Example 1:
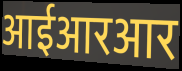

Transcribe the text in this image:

आईआरआर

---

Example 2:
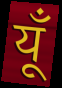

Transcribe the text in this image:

यूँ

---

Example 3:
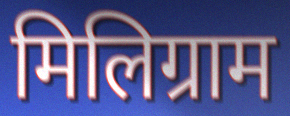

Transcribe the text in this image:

मिलिग्राम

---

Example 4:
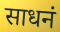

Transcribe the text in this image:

साधनं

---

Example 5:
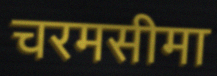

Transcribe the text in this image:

चरमसीमा